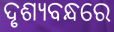
ଦୃଶ୍ୟବନ୍ଧରେ